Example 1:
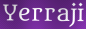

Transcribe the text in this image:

Yerraji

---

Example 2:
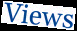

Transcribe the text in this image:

Views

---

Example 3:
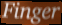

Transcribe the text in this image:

Finger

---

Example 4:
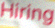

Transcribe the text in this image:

Hiring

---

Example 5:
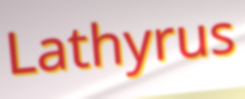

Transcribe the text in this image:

Lathyrus